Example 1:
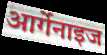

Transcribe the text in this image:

आर्गेनाइज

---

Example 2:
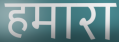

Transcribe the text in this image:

हमारा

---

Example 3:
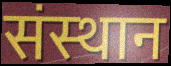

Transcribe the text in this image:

संस्थान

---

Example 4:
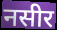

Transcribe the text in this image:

नसीर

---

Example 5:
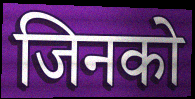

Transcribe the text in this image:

जिनको